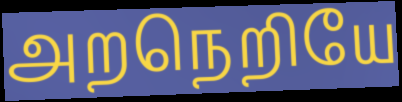
அறநெறியே